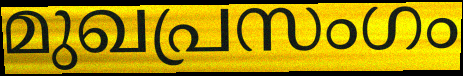
മുഖപ്രസംഗം